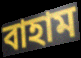
বাহাম